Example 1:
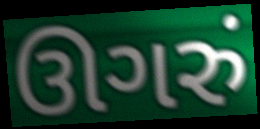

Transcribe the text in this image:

ઊગરું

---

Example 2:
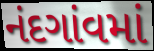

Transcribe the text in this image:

નંદગાંવમાં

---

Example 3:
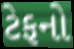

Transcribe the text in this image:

ટેફનો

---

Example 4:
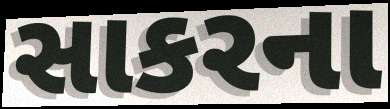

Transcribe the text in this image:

સાકરના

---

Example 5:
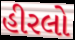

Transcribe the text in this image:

હીરલો